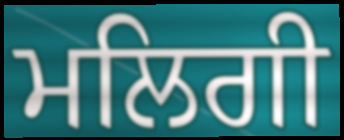
ਮਲਿਗੀ